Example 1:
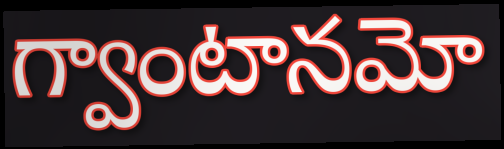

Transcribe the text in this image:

గ్వాంటానమో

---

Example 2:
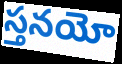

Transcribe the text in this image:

స్తనయో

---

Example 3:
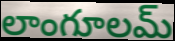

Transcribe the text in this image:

లాంగూలమ్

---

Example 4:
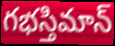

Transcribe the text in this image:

గభస్తిమాన్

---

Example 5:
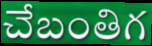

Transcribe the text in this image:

చేబంతిగ